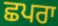
ਛਪਰਾ